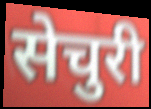
सेचुरी